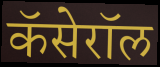
कॅसेरॉल